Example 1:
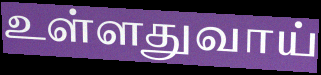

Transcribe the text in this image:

உள்ளதுவாய்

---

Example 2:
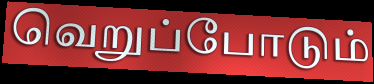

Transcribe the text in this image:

வெறுப்போடும்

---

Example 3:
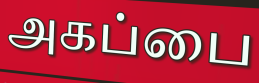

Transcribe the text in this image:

அகப்பை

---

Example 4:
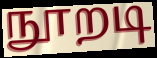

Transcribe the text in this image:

நூறடி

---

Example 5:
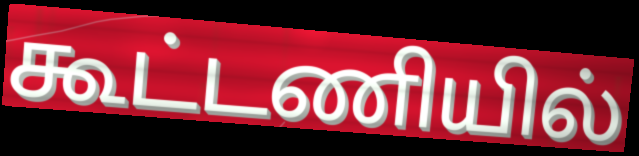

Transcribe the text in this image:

கூட்டணியில்